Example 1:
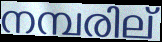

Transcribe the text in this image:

നമ്പരില്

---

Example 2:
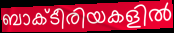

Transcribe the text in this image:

ബാക്ടീരിയകളിൽ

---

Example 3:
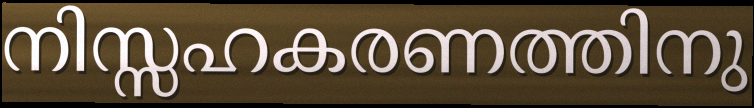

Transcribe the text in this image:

നിസ്സഹകരണത്തിനു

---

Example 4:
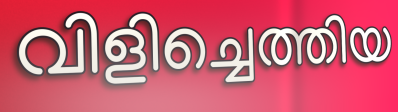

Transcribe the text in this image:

വിളിച്ചെത്തിയ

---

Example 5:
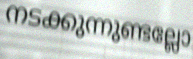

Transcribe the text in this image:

നടക്കുന്നുണ്ടല്ലോ